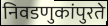
निवडणुकांपुरते